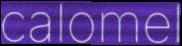
calomel